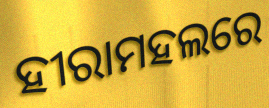
ହୀରାମହଲରେ